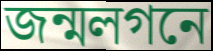
জন্মলগনে